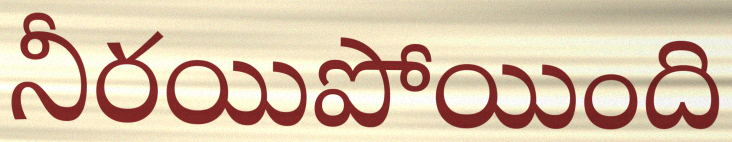
నీరయిపోయింది